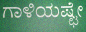
ಗಾಳಿಯಷ್ಟೇ